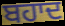
ਬਹਾਦ